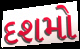
દશમો